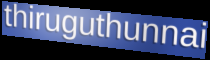
thiruguthunnai